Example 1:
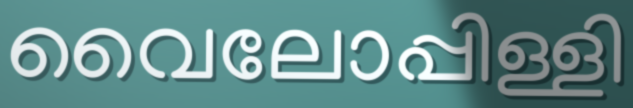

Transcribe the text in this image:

വൈലോപ്പിള്ളി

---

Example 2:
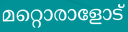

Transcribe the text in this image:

മറ്റൊരാളോട്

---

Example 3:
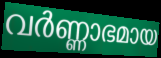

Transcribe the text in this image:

വർണ്ണാഭമായ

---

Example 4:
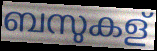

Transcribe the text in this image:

ബസുകള്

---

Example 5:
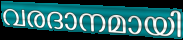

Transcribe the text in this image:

വരദാനമായി